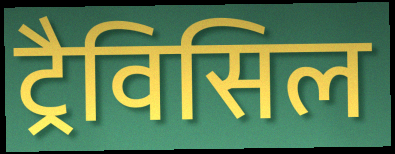
ट्रैविसिल